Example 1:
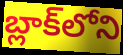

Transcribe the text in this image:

బ్లాక్‌లోని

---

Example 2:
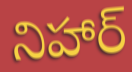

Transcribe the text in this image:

నిహార్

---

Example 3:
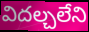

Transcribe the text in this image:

విదల్చలేని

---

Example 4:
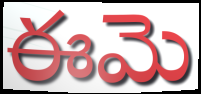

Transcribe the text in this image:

ఈమె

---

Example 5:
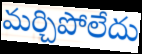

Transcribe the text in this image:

మర్చిపోలేదు